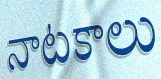
నాటకాలు